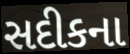
સદીકના